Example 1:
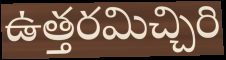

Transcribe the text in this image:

ఉత్తరమిచ్చిరి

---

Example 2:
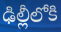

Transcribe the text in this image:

ఢిల్లీలోకి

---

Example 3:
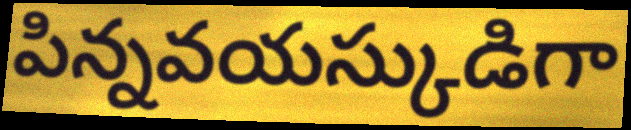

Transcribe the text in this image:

పిన్నవయస్కుడిగా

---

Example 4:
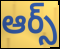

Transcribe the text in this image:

ఆర్స్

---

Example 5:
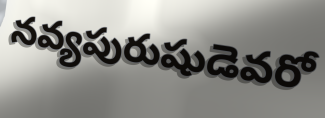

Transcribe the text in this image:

నవ్యపురుషుడెవరో